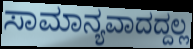
ಸಾಮಾನ್ಯವಾದದ್ದಲ್ಲ